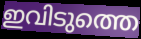
ഇവിടുത്തെ